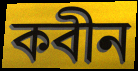
কবীন